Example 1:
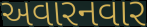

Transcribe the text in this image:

અવારનવાર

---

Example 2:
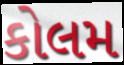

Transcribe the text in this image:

કોલમ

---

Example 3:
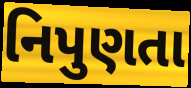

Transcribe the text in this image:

નિપુણતા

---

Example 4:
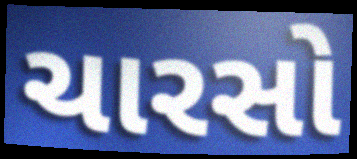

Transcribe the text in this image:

ચારસો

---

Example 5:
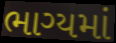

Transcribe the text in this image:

ભાગ્યમાં